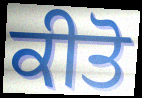
ਕੀਤੋ